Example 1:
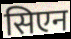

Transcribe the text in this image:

सिएन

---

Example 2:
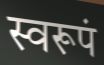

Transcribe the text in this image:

स्वरूपं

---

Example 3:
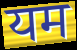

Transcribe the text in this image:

यम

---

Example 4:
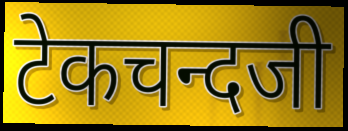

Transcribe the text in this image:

टेकचन्दजी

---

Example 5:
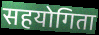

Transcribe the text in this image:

सहयोगिता